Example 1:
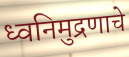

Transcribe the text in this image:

ध्वनिमुद्रणाचे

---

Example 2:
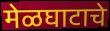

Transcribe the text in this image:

मेळघाटाचे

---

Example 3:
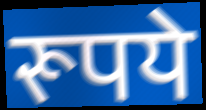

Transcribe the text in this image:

रूपये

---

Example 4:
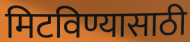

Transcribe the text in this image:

मिटविण्यासाठी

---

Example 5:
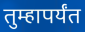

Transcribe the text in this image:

तुम्हापर्यंत